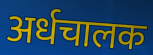
अर्धचालक